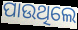
ପାଉଥିଲେ